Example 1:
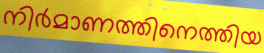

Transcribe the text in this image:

നിർമാണത്തിനെത്തിയ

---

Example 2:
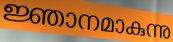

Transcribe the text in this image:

ജ്ഞാനമാകുന്നു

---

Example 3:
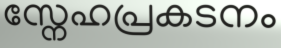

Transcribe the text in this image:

സ്നേഹപ്രകടനം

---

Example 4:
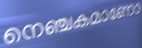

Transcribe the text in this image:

നെഞ്ചകമാണോ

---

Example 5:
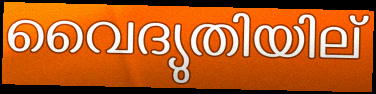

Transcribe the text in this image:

വൈദ്യുതിയില്